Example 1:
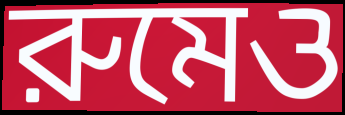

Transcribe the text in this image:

রুমেও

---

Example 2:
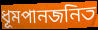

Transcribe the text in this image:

ধূমপানজনিত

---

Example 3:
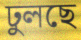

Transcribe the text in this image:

ঢুলছে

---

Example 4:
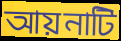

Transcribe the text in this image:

আয়নাটি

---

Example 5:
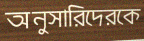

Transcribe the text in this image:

অনুসারিদেরকে